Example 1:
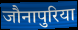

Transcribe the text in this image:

जौनापुरिया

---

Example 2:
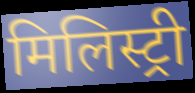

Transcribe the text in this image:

मिलिस्ट्री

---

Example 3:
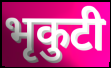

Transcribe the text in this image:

भृकुटी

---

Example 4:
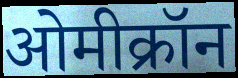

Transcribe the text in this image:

ओमीक्रॉन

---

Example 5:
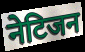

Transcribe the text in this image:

नेटिजन